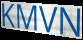
KMVN